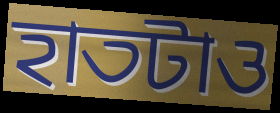
হাতটাও